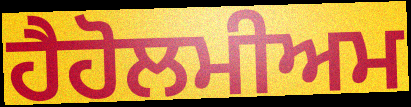
ਹੈਹੋਲਮੀਅਮ